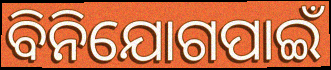
ବିନିଯୋଗପାଇଁ